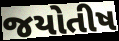
જયોતીષ